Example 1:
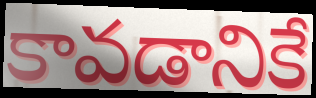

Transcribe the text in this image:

కావడానికే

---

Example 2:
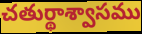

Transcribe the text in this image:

చతుర్థాశ్వాసము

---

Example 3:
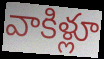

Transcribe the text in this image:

వాకిళ్లూ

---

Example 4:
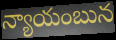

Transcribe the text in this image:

న్యాయంబున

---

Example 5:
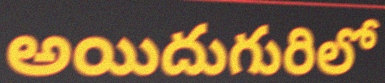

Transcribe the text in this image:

అయిదుగురిలో